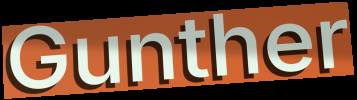
Gunther